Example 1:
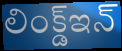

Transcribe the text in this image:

లింక్డ్ఇన్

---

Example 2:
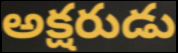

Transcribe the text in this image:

అక్షరుడు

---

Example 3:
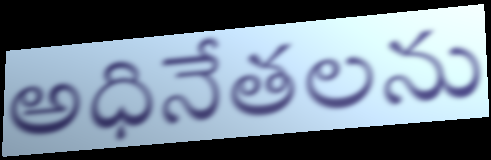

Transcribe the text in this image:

అధినేతలను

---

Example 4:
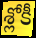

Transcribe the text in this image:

శ్లోకీ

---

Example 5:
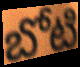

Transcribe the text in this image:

బోటి